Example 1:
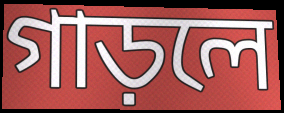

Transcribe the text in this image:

গাড়লে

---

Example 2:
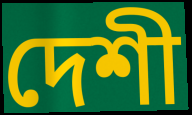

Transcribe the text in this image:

দেশী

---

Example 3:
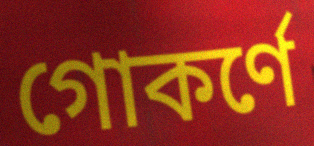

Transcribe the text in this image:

গোকর্ণে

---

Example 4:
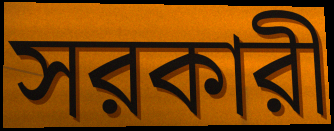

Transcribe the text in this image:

সরকারী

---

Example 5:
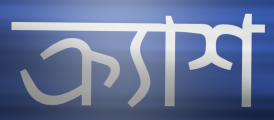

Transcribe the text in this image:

ক্র্যাশ